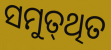
ସମୁତ୍‌ଥିତ